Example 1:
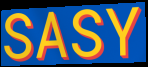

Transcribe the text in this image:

SASY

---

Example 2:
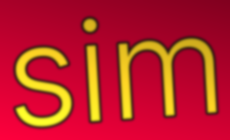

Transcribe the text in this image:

sim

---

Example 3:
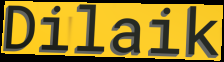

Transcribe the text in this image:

Dilaik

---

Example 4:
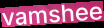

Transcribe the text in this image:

vamshee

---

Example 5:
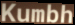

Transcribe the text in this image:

Kumbh